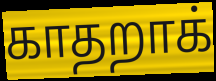
காதறாக்